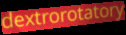
dextrorotatory